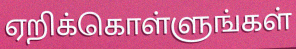
ஏறிக்கொள்ளுங்கள்